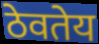
ठेवतेय